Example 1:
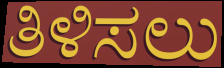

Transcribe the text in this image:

ತಿಳಿಸಲು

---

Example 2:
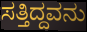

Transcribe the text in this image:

ಸತ್ತಿದ್ದವನು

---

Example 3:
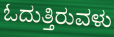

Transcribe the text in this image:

ಓದುತ್ತಿರುವಳು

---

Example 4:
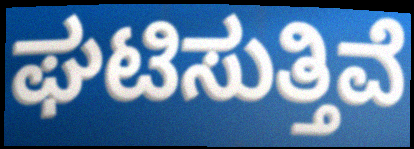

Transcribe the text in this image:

ಘಟಿಸುತ್ತಿವೆ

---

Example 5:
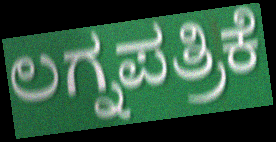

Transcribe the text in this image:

ಲಗ್ನಪತ್ರಿಕೆ